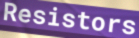
Resistors